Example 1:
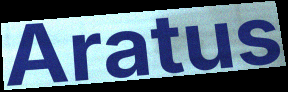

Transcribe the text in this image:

Aratus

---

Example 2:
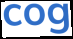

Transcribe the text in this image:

cog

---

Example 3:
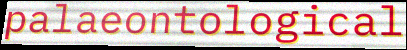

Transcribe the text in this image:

palaeontological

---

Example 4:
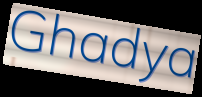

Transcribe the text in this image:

Ghadya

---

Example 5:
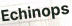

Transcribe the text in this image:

Echinops